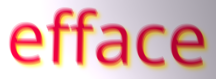
efface